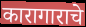
कारागाराचे